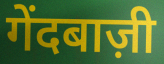
गेंदबाज़ी